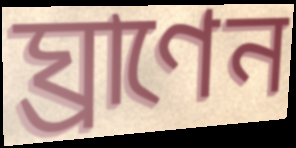
ঘ্রাণেন